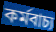
কৰ্মবাচ্য